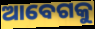
ଆବେଗକୁ